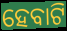
ହେବାଟି